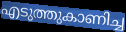
എടുത്തുകാണിച്ച